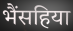
भैंसहिया